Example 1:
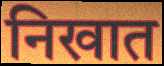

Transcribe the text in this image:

निखात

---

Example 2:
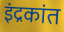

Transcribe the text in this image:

इंद्रकांत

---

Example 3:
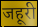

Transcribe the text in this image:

जहूरी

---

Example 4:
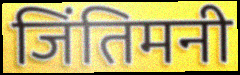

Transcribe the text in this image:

जिंतिमनी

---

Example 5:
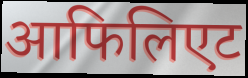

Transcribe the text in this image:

आफिलिएट